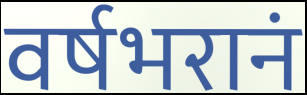
वर्षभरानं